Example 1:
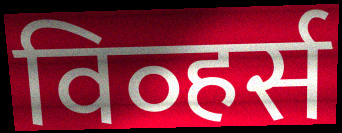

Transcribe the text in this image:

विव्हर्स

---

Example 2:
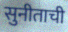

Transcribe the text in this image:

सुनीताची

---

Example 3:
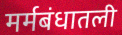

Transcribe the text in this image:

मर्मबंधातली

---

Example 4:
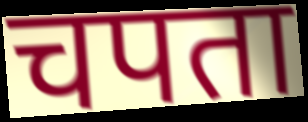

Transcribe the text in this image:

चपता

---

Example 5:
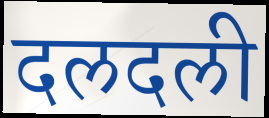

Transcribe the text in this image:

दलदली